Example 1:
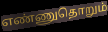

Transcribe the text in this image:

எண்ணுதொறும்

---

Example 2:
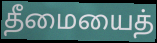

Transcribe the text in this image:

தீமையைத்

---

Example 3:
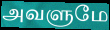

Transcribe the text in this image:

அவளுமே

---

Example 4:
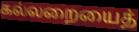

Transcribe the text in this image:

கல்லறையைத்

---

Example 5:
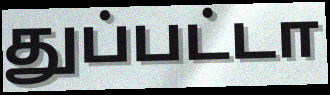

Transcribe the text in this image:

துப்பட்டா